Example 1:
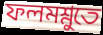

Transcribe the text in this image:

ফলমশ্নুতে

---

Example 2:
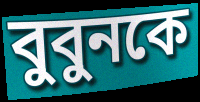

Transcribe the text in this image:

বুবুনকে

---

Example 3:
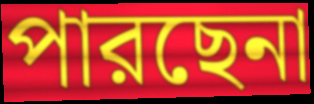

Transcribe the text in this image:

পারছেনা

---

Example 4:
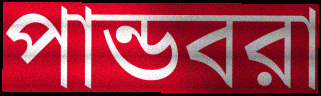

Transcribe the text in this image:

পান্ডবরা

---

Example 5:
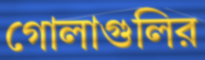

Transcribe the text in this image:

গোলাগুলির